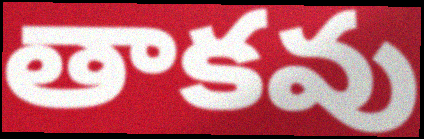
తాకవు